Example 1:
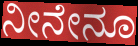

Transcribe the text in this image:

ನೀನೇನೂ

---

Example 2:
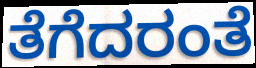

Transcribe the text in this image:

ತೆಗೆದರಂತೆ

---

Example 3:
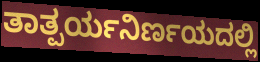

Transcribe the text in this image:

ತಾತ್ಪರ್ಯನಿರ್ಣಯದಲ್ಲಿ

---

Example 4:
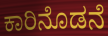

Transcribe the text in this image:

ಕಾರಿನೊಡನೆ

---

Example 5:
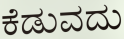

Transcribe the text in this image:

ಕೆಡುವದು